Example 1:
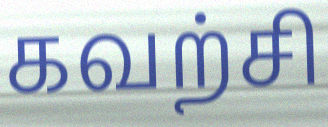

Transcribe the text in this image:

கவற்சி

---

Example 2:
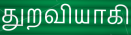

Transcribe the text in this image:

துறவியாகி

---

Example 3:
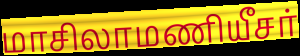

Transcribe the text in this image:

மாசிலாமணியீசர்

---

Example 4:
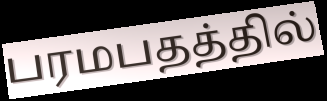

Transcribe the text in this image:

பரமபதத்தில்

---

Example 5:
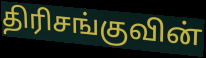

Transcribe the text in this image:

திரிசங்குவின்